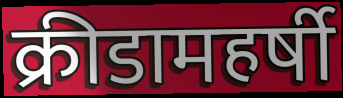
क्रीडामहर्षी